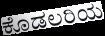
ಕೊಡಲರಿಯ